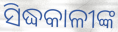
ସିଦ୍ଧକାଳୀଙ୍କ